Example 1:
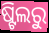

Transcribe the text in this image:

ଷ୍ଟିଲରୁ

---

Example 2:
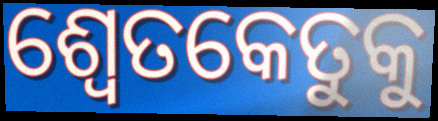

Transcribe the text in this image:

ଶ୍ୱେତକେତୁକୁ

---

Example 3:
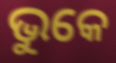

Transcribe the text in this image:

ଭୁକେ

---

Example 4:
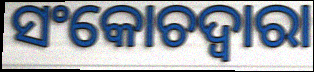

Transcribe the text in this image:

ସଂକୋଚଦ୍ୱାରା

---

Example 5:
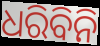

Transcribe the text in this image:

ଧରିବିନି